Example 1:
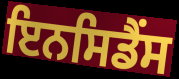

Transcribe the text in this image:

ਇਨਸਿਡੈਂਸ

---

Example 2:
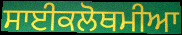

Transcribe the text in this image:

ਸਾਈਕਲੋਥਮੀਆ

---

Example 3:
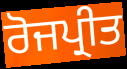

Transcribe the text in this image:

ਰੋਜਪ੍ਰੀਤ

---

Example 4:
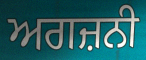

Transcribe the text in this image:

ਅਗਜ਼ਨੀ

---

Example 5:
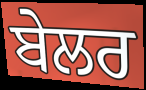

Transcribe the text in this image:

ਬੇਲਰ